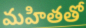
మహితతో